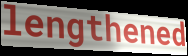
lengthened